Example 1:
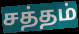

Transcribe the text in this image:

சத்தம்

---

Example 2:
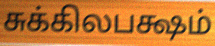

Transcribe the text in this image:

சுக்கிலபக்ஷம்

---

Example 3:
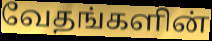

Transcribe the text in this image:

வேதங்களின்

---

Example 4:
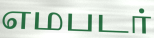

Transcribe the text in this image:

எமபடர்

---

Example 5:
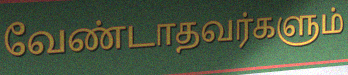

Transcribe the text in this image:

வேண்டாதவர்களும்